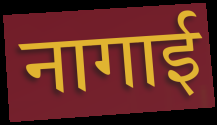
नागाई